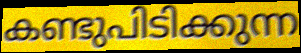
കണ്ടുപിടിക്കുന്ന